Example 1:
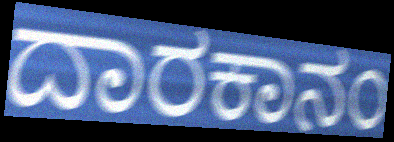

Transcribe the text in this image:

ದಾರಕಾನಂ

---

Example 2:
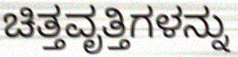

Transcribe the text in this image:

ಚಿತ್ತವೃತ್ತಿಗಳನ್ನು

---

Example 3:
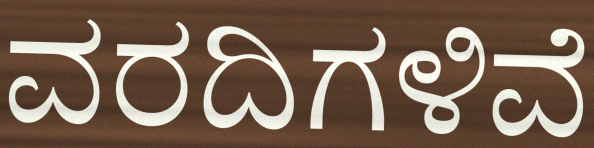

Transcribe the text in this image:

ವರದಿಗಳಿವೆ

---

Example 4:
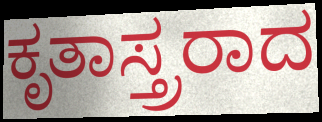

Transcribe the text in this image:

ಕೃತಾಸ್ತ್ರರಾದ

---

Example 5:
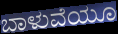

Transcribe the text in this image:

ಬಾಳುವೆಯೂ